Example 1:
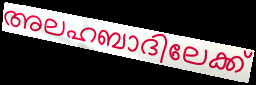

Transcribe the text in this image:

അലഹബാദിലേക്ക്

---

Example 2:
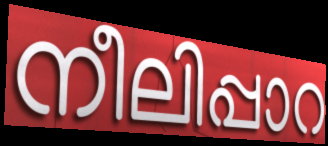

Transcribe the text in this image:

നീലിപ്പാറ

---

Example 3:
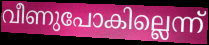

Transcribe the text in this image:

വീണുപോകില്ലെന്ന്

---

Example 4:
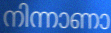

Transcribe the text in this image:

നിന്നാണാ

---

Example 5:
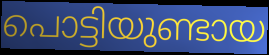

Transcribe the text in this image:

പൊട്ടിയുണ്ടായ